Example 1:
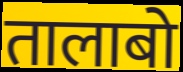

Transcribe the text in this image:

तालाबो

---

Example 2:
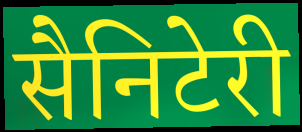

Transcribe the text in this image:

सैनिटेरी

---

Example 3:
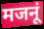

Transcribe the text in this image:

मजनूं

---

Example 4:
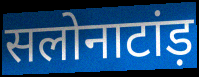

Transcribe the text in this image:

सलोनाटांड़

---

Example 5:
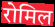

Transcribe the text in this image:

रोमिल